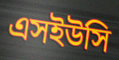
এসইউসি